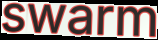
swarm